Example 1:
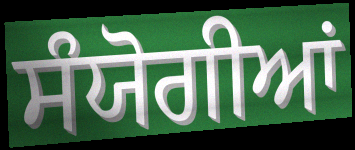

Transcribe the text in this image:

ਸੰਯੋਗੀਆਂ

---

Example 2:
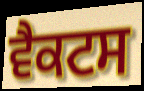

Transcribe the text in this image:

ਵੈਕਟਸ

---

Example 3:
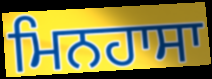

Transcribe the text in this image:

ਮਿਨਹਾਸਾ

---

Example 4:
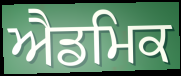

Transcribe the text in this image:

ਐਡਮਿਕ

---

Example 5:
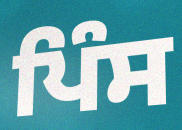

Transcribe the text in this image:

ਪਿੰਸ